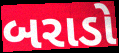
બરાડો